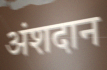
अंशदान